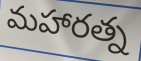
మహారత్న